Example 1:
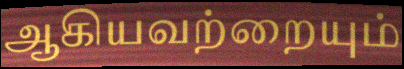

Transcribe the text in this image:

ஆகியவற்றையும்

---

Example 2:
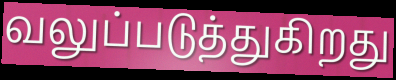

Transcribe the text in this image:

வலுப்படுத்துகிறது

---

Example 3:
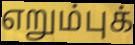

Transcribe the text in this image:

எறும்புக்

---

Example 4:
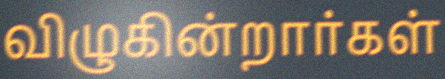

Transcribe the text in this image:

விழுகின்றார்கள்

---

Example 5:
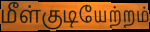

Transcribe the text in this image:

மீள்குடியேற்றம்